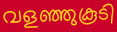
വളഞ്ഞുകൂടി